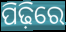
ପିଢ଼ିରେ